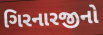
ગિરનારજીનો